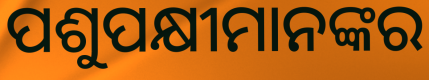
ପଶୁପକ୍ଷୀମାନଙ୍କର